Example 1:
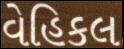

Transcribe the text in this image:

વેહિકલ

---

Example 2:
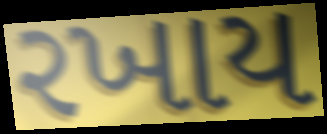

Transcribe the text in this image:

રખાય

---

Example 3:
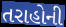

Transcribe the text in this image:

તરાહોની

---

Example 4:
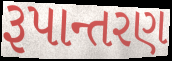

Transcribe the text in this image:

રૂપાન્તરણ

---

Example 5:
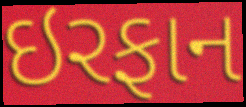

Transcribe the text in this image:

ઇરફાન